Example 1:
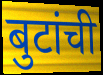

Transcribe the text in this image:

बुटांची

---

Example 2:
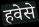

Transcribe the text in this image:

हवेसे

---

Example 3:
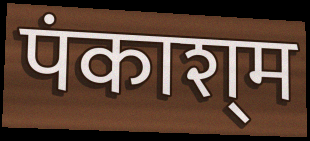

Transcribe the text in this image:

पंकाश्म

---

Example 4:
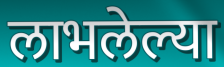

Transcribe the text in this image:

लाभलेल्या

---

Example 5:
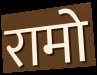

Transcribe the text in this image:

रामो